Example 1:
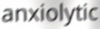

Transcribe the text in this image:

anxiolytic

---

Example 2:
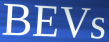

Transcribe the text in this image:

BEVs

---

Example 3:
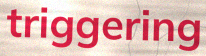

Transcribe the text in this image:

triggering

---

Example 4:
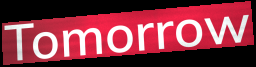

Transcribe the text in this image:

Tomorrow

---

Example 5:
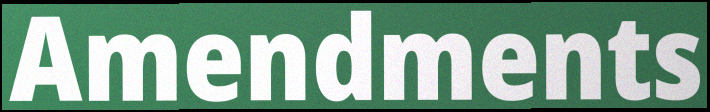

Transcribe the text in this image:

Amendments